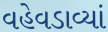
વહેવડાવ્યાં